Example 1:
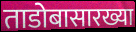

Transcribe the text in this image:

ताडोबासारख्या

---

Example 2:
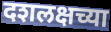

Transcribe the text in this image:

दशलक्षच्या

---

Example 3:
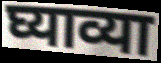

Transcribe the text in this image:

घ्याव्या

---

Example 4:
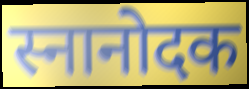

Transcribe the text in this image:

स्नानोदक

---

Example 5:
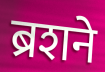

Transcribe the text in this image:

ब्रशने